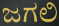
ಜಗಲಿ